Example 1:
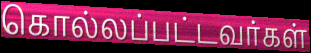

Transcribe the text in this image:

கொல்லப்பட்டவர்கள்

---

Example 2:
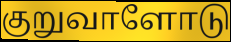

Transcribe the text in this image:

குறுவாளோடு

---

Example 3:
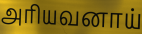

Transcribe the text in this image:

அரியவனாய்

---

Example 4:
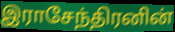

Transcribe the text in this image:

இராசேந்திரனின்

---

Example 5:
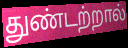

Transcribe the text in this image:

துண்டற்றால்